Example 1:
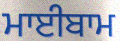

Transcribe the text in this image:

ਮਾਈਬਾਮ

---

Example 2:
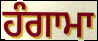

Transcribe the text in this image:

ਹੰਗਾਮਾ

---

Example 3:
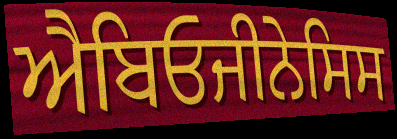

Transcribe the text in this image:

ਐਬਿਓਜੀਨੇਸਿਸ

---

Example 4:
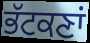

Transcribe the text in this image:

ਭੱਟਕਣਾਂ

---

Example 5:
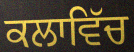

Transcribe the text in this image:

ਕਲਾਵਿੱਚ